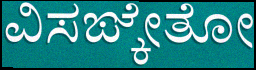
ವಿಸಙ್ಕೇತೋ